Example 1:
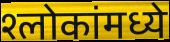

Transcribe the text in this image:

श्लोकांमध्ये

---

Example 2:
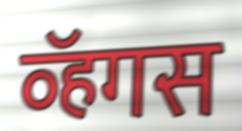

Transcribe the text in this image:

व्हॅगस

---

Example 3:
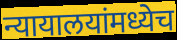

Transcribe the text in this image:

न्यायालयांमध्येच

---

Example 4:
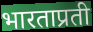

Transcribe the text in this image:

भारताप्रती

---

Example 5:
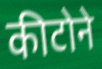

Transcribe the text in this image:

कीटोने